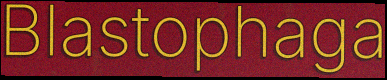
Blastophaga